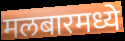
मलबारमध्ये